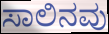
ಸಾಲಿನವು